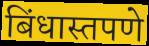
बिंधास्तपणे